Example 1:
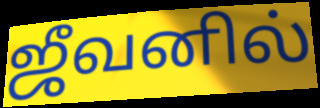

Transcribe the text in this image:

ஜீவனில்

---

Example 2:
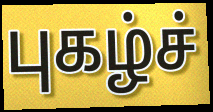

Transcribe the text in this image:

புகழ்ச்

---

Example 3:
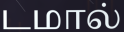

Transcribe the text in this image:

டமால்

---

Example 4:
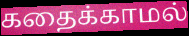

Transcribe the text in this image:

கதைக்காமல்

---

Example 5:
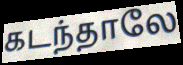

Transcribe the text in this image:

கடந்தாலே